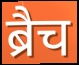
ब्रैच